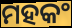
ମହକଂ